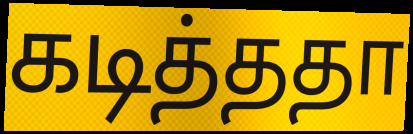
கடித்ததா